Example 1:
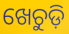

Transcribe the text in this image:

ଖେଚୁଡ଼ି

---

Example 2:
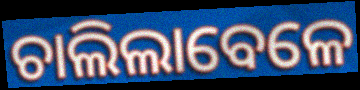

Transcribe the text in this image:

ଚାଲିଲାବେଳେ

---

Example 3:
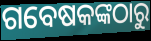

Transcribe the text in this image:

ଗବେଷକଙ୍କଠାରୁ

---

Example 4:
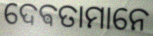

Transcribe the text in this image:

ଦେଵତାମାନେ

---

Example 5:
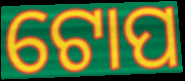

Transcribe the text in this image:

ଟୋପ